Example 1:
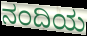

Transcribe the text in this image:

ನಂದಿಯ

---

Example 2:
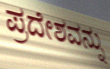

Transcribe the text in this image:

ಪ್ರದೇಶವನ್ನು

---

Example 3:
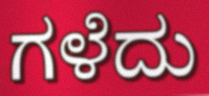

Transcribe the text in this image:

ಗಳೆದು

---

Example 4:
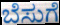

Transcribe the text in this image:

ಬೆಸುಗೆ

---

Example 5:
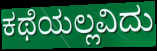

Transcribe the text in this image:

ಕಥೆಯಲ್ಲವಿದು